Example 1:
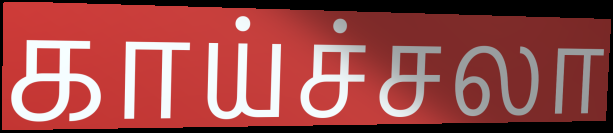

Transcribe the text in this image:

காய்ச்சலா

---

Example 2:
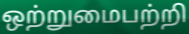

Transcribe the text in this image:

ஒற்றுமைபற்றி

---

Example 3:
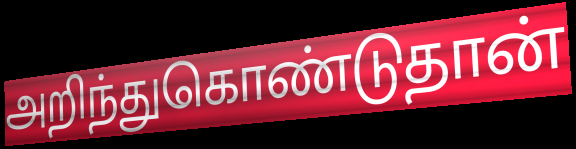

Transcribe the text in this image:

அறிந்துகொண்டுதான்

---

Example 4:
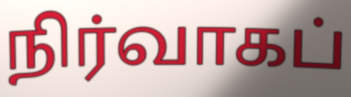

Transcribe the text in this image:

நிர்வாகப்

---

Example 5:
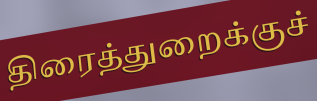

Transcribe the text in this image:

திரைத்துறைக்குச்